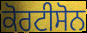
ਕੋਰਟੀਸੋਨ